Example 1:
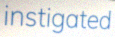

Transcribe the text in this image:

instigated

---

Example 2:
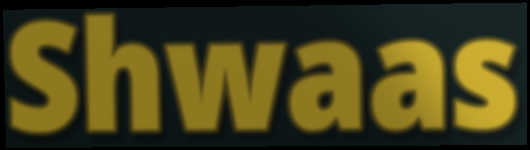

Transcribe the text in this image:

Shwaas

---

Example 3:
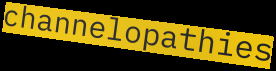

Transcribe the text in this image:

channelopathies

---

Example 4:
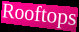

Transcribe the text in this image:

Rooftops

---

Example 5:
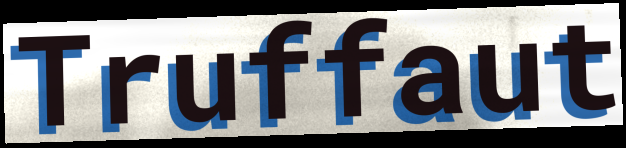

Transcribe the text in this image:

Truffaut